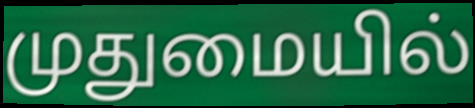
முதுமையில்